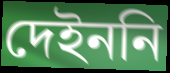
দেইননি